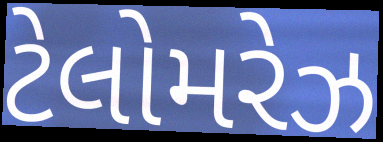
ટેલોમરેઝ